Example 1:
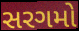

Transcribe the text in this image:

સરગમો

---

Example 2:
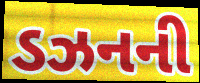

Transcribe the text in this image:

ડઝનની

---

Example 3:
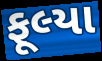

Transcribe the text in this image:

ફૂલ્યા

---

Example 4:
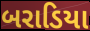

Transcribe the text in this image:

બરાડિયા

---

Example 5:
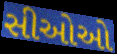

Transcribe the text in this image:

સીઓઓ